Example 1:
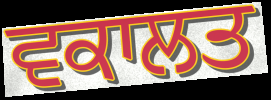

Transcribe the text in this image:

ਵਕਾਲਤ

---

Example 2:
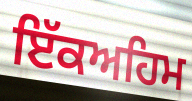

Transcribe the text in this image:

ਇੱਕਅਹਿਮ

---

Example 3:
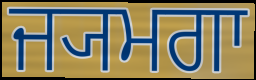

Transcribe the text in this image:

ਜ੍ਯਮਗਾ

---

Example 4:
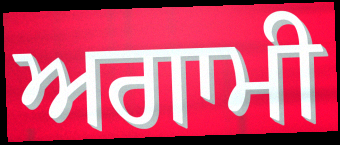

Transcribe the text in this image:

ਅਗਾਮੀ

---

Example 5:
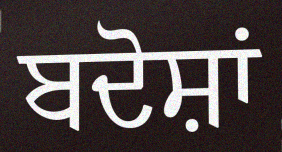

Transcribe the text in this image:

ਬਦੋਸ਼ਾਂ